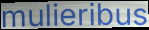
mulieribus